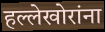
हल्लेखोरांना